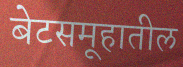
बेटसमूहातील